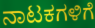
ನಾಟಕಗಳಿಗೆ